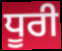
ਧੂਰੀ